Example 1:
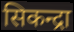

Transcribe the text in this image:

सिकन्द्रा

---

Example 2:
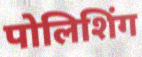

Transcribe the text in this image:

पोलिशिंग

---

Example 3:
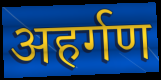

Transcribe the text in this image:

अहर्गण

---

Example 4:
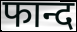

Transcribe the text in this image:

फान्द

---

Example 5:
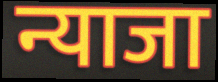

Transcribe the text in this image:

न्याजा